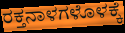
ರಕ್ತನಾಳಗಳೊಳಕ್ಕೆ